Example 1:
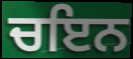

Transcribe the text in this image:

ਚਇਨ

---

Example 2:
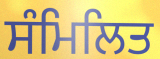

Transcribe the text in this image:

ਸੰਮਿਲਿਤ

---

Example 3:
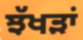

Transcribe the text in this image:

ਝੱਖੜਾਂ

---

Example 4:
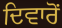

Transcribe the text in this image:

ਦਿਵਾਰੋਂ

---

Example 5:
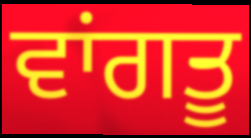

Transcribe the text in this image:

ਵਾਂਗਤੂ